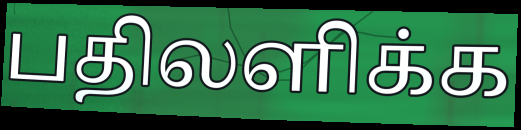
பதிலளிக்க